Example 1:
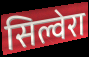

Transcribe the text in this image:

सिल्वेरा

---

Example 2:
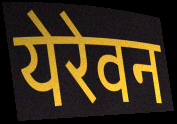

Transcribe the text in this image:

येरेवन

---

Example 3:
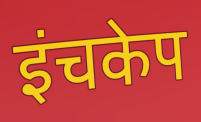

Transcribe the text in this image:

इंचकेप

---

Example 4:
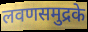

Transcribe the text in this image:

लवणसमुद्रके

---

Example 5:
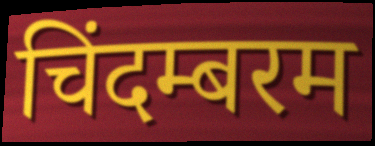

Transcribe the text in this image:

चिंदम्बरम